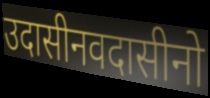
उदासीनवदासीनो